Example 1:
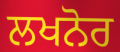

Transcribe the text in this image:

ਲਖਨੋਰ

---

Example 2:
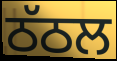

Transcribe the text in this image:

ਠੱਠਲ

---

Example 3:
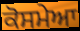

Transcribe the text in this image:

ਕੋਸਮੇਆ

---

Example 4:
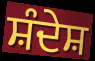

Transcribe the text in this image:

ਸ਼ੰਦੇਸ਼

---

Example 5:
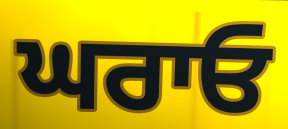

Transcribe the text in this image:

ਘਰਾਓ